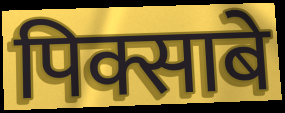
पिक्साबे